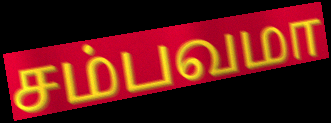
சம்பவமா